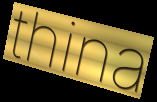
thina